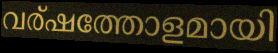
വര്ഷത്തോളമായി